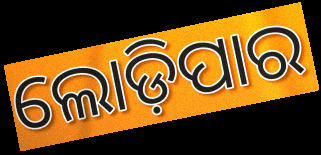
ଲୋଡ଼ିପାର